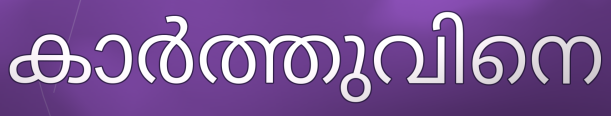
കാർത്തുവിനെ